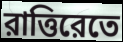
রাত্তিরেতে